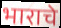
भाराचे